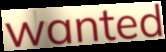
wanted